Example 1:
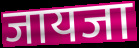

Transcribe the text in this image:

जायजा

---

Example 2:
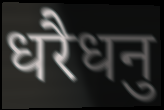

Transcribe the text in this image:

धरैधनु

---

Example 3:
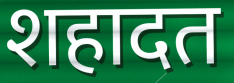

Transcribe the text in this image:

शहादत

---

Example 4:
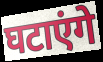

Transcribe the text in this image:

घटाएंगे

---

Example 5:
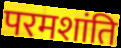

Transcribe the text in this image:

परमशांति